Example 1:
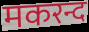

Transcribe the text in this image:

मकरन्द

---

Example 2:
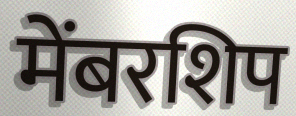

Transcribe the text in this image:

मेंबरशिप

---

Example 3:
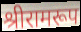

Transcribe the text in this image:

श्रीरामरूप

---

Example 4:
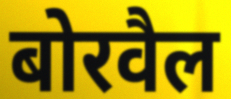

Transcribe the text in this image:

बोरवैल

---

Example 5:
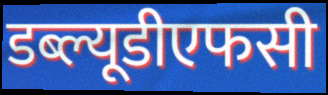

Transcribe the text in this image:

डब्ल्यूडीएफसी